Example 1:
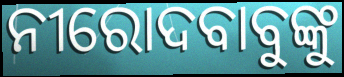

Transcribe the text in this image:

ନୀରୋଦବାବୁଙ୍କୁ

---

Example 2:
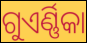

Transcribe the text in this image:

ଗୁଏର୍ଣ୍ଣିକା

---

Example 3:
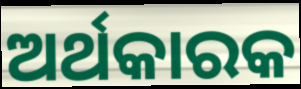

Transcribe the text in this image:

ଅର୍ଥକାରକ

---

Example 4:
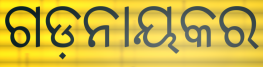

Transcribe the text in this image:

ଗଡ଼ନାୟକର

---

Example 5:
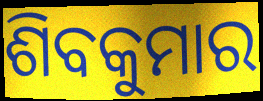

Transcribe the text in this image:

ଶିବକୁମାର